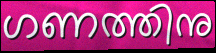
ഗണത്തിനു